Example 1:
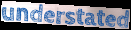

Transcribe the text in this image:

understated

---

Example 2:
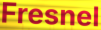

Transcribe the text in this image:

Fresnel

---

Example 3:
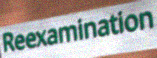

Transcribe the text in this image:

Reexamination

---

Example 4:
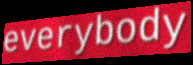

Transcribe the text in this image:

everybody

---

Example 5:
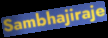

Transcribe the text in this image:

Sambhajiraje